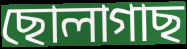
ছোলাগাছ